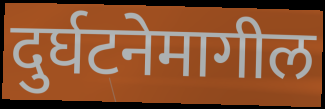
दुर्घटनेमागील